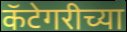
कॅटेगरीच्या